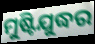
ମୁଷ୍ଟିଯୁଦ୍ଧର